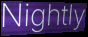
Nightly